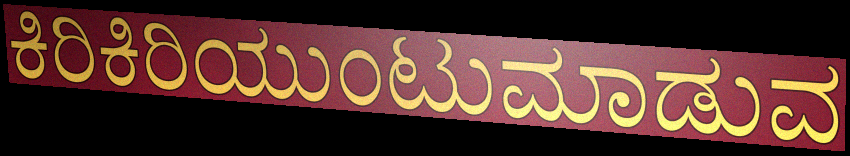
ಕಿರಿಕಿರಿಯುಂಟುಮಾಡುವ